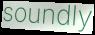
soundly